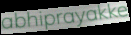
abhiprayakke